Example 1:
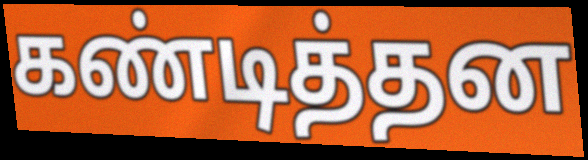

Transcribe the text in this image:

கண்டித்தன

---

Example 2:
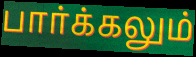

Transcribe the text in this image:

பார்க்கலும்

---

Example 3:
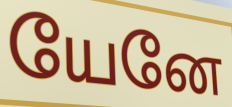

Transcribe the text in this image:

யேனே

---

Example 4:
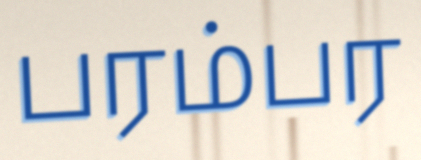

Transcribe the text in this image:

பரம்பர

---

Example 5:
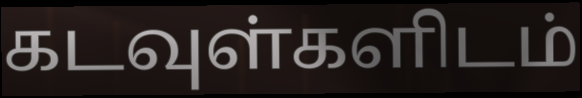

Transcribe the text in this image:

கடவுள்களிடம்